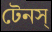
টেনস্